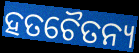
ହତଚୈତନ୍ୟ